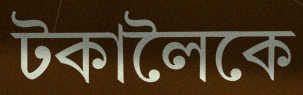
টকালৈকে